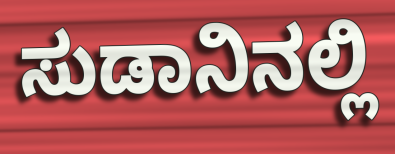
ಸುಡಾನಿನಲ್ಲಿ